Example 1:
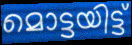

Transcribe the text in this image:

മൊട്ടയിട്ട്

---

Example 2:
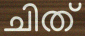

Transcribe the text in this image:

ചിത്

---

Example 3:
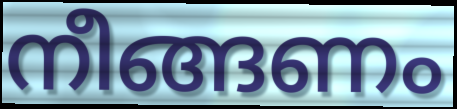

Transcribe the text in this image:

നീങ്ങണം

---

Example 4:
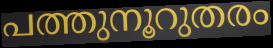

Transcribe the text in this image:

പത്തുനൂറുതരം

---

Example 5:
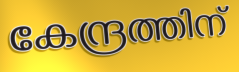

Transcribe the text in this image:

കേന്ദ്രത്തിന്